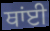
ਥਾਂਈ